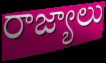
రాజ్యాలు